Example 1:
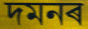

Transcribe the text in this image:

দমনৰ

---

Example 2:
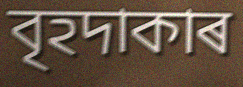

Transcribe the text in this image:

বৃহদাকাৰ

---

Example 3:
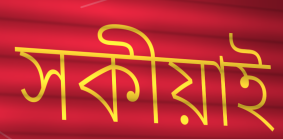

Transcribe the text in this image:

সকীয়াই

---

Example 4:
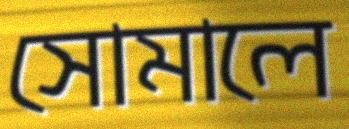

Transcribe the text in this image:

সোমালে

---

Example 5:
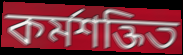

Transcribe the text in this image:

কৰ্মশক্তিত